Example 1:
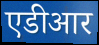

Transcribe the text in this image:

एडीआर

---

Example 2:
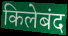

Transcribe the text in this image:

किलेबंद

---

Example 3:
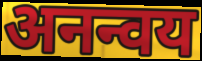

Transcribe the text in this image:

अनन्वय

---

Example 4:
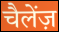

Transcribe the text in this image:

चैलेंज़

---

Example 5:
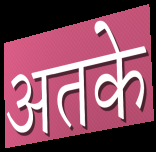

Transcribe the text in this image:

अतके